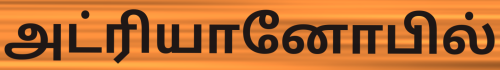
அட்ரியானோபில்